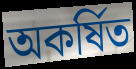
অকর্ষিত